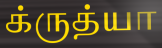
க்ருத்யா